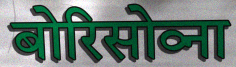
बोरिसोव्ना